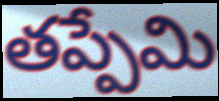
తప్పేమి